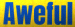
Aweful